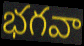
భగవా